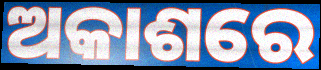
ଅକାଶରେ